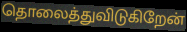
தொலைத்துவிடுகிறேன்